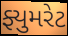
ફ્યુમરેટ